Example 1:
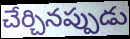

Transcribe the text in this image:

చేర్చినప్పుడు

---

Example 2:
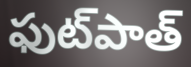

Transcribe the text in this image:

ఫుట్‌పాత్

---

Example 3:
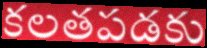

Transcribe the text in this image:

కలతపడకు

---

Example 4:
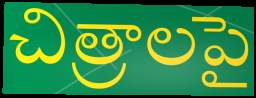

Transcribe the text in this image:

చిత్రాలపై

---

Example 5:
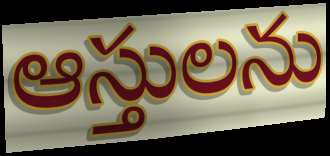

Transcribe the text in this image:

ఆస్తులను